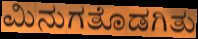
ಮಿನುಗತೊಡಗಿತು